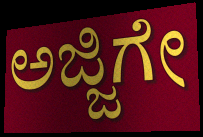
ಅಜ್ಜಿಗೇ